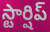
స్టార్షిప్